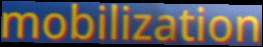
mobilization